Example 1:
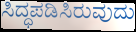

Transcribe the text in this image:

ಸಿದ್ಧಪಡಿಸಿರುವುದು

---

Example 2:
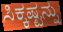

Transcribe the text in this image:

ಸಿಕ್ಕಷ್ಟನ್ನು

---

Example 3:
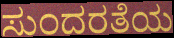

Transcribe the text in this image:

ಸುಂದರತೆಯ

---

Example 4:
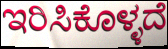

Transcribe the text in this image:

ಇರಿಸಿಕೊಳ್ಳದೆ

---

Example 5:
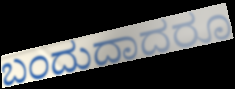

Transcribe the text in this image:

ಬಂದುದಾದರೂ